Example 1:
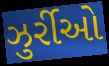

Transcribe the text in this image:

ઝુર્રીઓ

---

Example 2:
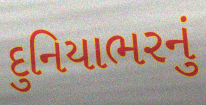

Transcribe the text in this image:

દુનિયાભરનું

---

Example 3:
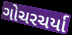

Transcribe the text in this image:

ગોચરચર્યા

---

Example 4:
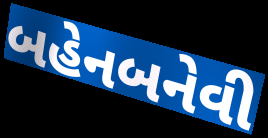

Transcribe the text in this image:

બહેનબનેવી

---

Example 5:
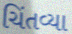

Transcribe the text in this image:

ચિંતવ્યા